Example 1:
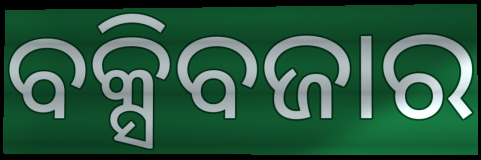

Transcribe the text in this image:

ବକ୍ସିବଜାର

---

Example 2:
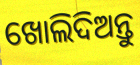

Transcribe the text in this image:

ଖୋଲିଦିଅନ୍ତୁ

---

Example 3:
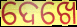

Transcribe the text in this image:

ଦେଖେ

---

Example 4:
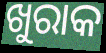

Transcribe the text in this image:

ଖୁରାକ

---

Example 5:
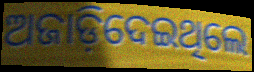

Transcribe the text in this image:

ଅଜାଡ଼ିଦେଇଥିଲେ